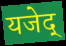
यजेद्